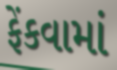
ફેંકવામાં